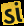
ડાં